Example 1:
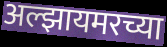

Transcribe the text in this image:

अल्झायमरच्या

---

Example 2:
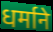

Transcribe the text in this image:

धर्माने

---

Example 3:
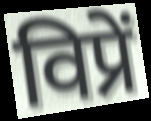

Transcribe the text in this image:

विप्रें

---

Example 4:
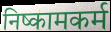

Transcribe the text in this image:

निष्कामकर्म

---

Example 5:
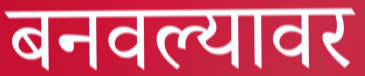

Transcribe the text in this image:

बनवल्यावर